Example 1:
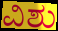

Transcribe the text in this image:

ವಿಶು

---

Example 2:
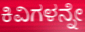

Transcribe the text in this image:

ಕಿವಿಗಳನ್ನೇ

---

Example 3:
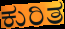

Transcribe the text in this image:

ಕುರಿತ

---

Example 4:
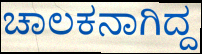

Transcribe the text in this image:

ಚಾಲಕನಾಗಿದ್ದ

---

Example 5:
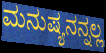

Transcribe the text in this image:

ಮನುಷ್ಯನನ್ನಲ್ಲ